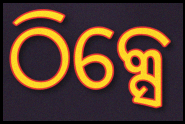
ଠିକ୍ସେ